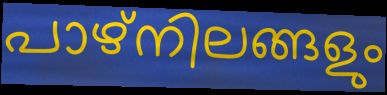
പാഴ്നിലങ്ങളും